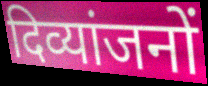
दिव्यांजनों